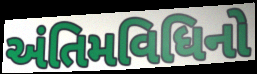
અંતિમવિધિનો